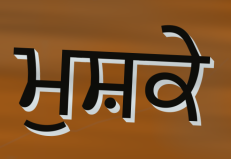
ਮੁਸ਼ਕੇ